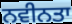
ਨਵੀਨਤਾ